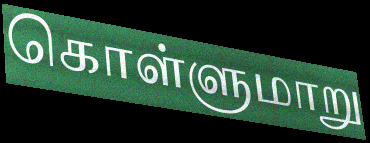
கொள்ளுமாறு